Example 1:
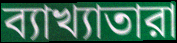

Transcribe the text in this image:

ব্যাখ্যাতারা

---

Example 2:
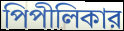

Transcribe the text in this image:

পিপীলিকার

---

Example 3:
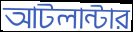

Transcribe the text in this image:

আটলান্টার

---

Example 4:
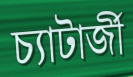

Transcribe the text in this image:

চ্যাটার্জী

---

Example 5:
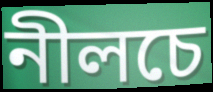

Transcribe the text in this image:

নীলচে